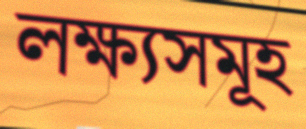
লক্ষ্যসমূহ